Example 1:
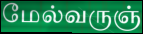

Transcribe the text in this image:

மேல்வருஞ்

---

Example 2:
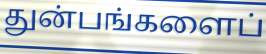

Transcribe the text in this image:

துன்பங்களைப்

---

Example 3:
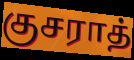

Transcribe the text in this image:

குசராத்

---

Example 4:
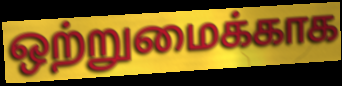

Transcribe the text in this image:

ஒற்றுமைக்காக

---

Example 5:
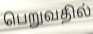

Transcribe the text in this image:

பெறுவதில்